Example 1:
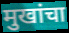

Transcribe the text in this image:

मुखांचा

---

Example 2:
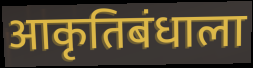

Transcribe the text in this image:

आकृतिबंधाला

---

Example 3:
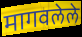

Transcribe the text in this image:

मागवलेले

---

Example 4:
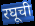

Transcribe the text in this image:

रघूची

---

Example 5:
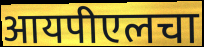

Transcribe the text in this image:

आयपीएलचा